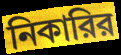
নিকারির